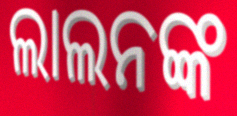
ଲାଲନଙ୍କ